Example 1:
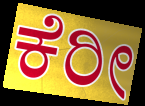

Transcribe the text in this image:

ಕೆರೀ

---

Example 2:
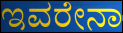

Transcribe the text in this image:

ಇವರೇನಾ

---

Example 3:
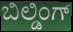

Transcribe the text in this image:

ಬಿಲ್ಡಿಂಗ್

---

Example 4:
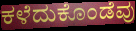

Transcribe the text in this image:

ಕಳೆದುಕೊಂಡೆವು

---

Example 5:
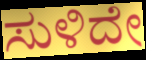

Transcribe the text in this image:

ಸುಳಿದೇ